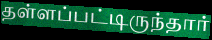
தள்ளப்பட்டிருந்தார்